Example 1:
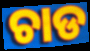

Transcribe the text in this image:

ଚାଡ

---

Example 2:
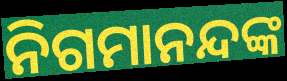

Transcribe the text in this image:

ନିଗମାନନ୍ଦଙ୍କ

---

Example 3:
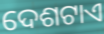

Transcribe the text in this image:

ଦେଶଟାଏ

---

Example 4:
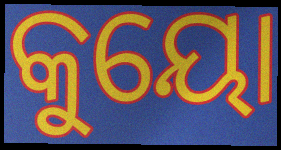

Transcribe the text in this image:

କୁୟୋ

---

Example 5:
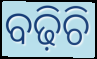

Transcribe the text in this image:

ବଢ଼ିଚି